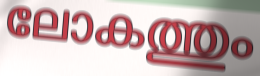
ലോകത്തും